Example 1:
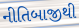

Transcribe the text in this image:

નીતિબાજીથી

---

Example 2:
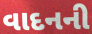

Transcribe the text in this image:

વાદનની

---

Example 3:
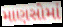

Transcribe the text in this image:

માણસોમાં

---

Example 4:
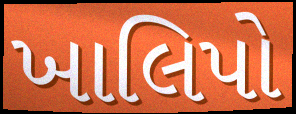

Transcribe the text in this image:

ખાલિપો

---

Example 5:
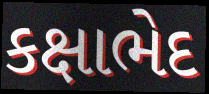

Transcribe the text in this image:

કક્ષાભેદ